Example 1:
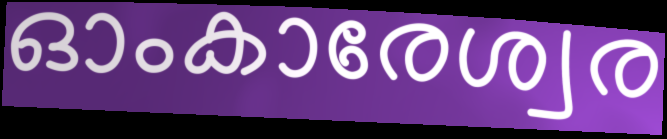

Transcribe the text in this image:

ഓംകാരേശ്വര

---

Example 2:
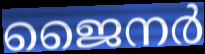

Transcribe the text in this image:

ജൈനർ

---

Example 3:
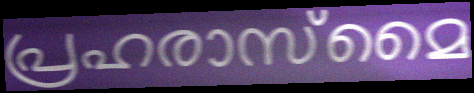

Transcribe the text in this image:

പ്രഹരാസ്മൈ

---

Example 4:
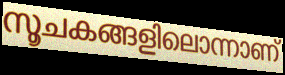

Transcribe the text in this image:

സൂചകങ്ങളിലൊന്നാണ്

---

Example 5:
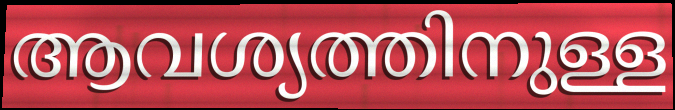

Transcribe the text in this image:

ആവശ്യത്തിനുള്ള